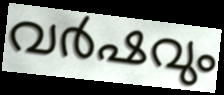
വർഷവും